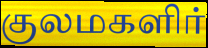
குலமகளிர்